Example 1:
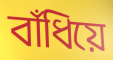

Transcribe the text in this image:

বাঁধিয়ে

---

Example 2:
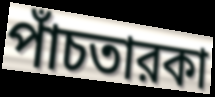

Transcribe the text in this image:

পাঁচতারকা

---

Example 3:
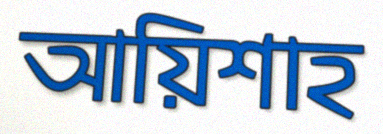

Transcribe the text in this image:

আয়িশাহ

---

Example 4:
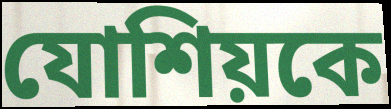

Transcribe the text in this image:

যোশিয়কে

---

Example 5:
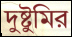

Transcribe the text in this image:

দুষ্টুমির